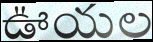
ఊయల